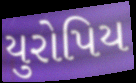
યુરોપિય